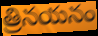
త్రినయనం